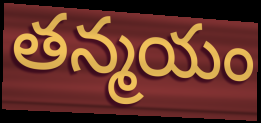
తన్మయం